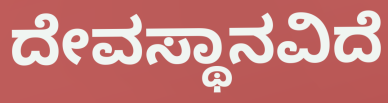
ದೇವಸ್ಥಾನವಿದೆ